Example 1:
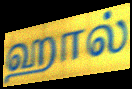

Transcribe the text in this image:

ஹால்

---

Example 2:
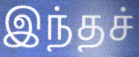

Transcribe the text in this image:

இந்தச்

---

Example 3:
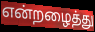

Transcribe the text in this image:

என்றழைத்து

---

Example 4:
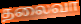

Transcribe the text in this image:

தலைவா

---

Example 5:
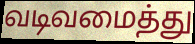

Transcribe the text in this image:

வடிவமைத்து